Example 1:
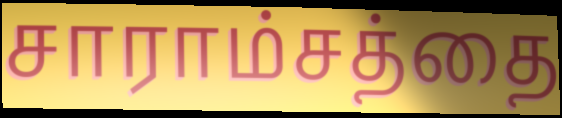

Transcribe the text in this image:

சாராம்சத்தை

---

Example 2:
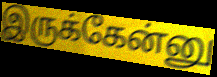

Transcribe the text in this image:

இருக்கேன்னு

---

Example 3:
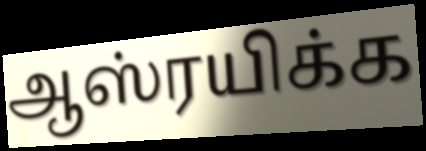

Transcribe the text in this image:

ஆஸ்ரயிக்க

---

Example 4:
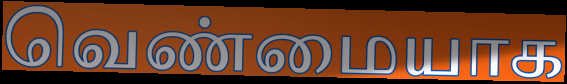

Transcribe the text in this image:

வெண்மையாக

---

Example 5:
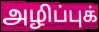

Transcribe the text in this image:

அழிப்புக்